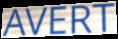
AVERT